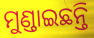
ମୁଣ୍ଡାଇଛନ୍ତି